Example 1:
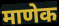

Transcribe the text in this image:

माणेक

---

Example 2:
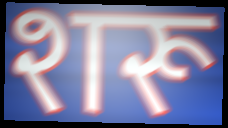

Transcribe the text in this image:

शरू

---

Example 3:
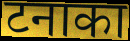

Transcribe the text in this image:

टनाका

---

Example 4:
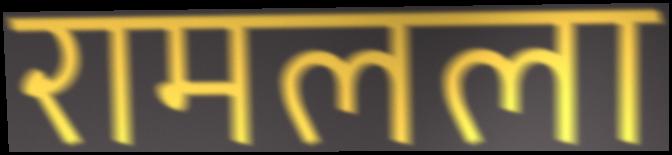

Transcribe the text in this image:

रामलला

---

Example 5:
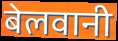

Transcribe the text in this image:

बेलवानी